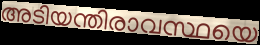
അടിയന്തിരാവസ്ഥയെ